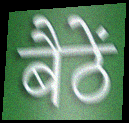
बैठें